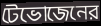
টেভোজেনের